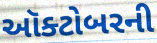
ઑક્ટોબરની